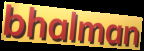
bhalman